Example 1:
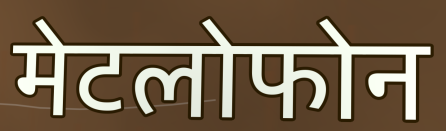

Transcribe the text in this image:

मेटलोफोन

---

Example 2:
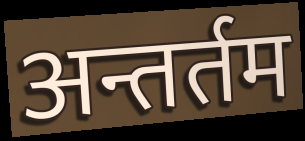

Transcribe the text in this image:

अन्तर्तम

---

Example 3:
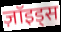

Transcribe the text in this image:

ज़ॉइड्स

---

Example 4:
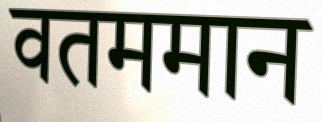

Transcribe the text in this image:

वतममान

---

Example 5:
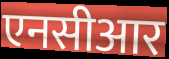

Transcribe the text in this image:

एनसीआर